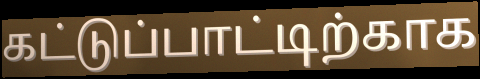
கட்டுப்பாட்டிற்காக